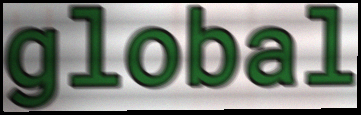
global